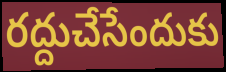
రద్దుచేసేందుకు